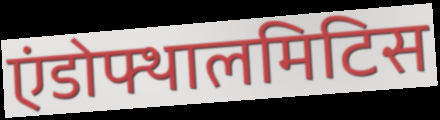
एंडोफ्थालमिटिस